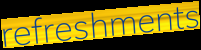
refreshments